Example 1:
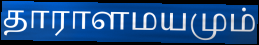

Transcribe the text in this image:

தாராளமயமும்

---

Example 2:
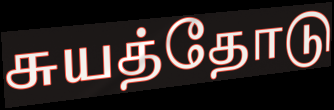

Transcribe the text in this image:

சுயத்தோடு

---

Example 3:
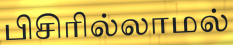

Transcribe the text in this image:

பிசிரில்லாமல்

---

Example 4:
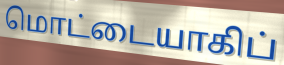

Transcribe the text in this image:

மொட்டையாகிப்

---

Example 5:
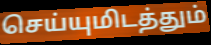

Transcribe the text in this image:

செய்யுமிடத்தும்